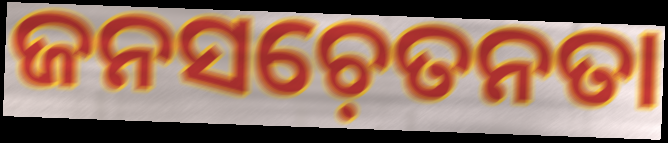
ଜନସଚ଼େତନତା